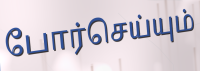
போர்செய்யும்